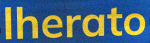
lherato